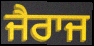
ਜੈਰਾਜ